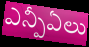
ఎన్పీఏలు